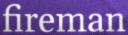
fireman